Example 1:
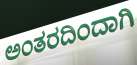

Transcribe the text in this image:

ಅಂತರದಿಂದಾಗಿ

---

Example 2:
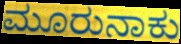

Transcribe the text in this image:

ಮೂರುನಾಕು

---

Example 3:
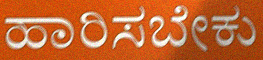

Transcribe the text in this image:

ಹಾರಿಸಬೇಕು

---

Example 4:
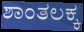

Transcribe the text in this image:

ಶಾಂತಲಕ್ಕ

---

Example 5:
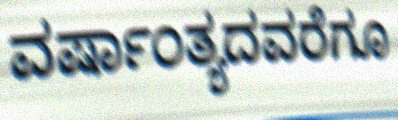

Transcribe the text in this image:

ವರ್ಷಾಂತ್ಯದವರೆಗೂ